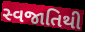
સ્વજાતિથી